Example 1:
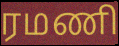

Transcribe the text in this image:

ரமணி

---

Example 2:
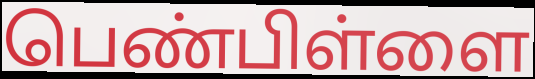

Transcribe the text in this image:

பெண்பிள்ளை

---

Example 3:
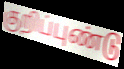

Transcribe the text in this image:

குறிப்புண்டு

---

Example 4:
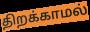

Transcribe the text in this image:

திறக்காமல்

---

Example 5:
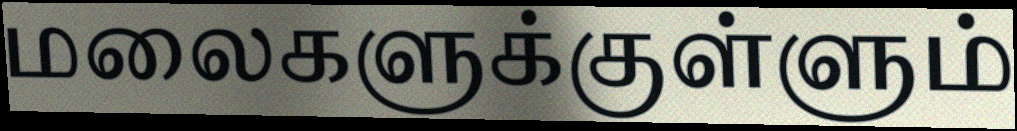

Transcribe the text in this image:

மலைகளுக்குள்ளும்